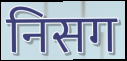
निसग